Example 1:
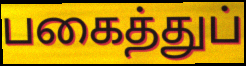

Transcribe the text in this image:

பகைத்துப்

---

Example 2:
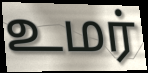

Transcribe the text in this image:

உமர்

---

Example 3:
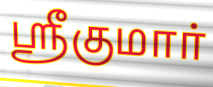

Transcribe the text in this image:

ஸ்ரீகுமார்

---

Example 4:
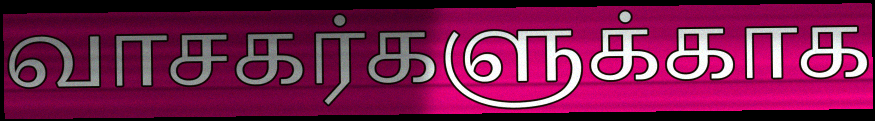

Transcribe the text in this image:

வாசகர்களுக்காக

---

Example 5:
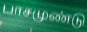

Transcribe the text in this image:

பாசமுண்டு